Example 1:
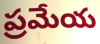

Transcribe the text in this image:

ప్రమేయ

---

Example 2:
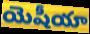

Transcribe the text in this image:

యెషీయా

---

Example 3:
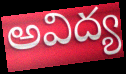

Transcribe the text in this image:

అవిద్య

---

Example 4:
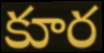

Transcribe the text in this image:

కూర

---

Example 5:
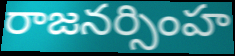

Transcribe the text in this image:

రాజనర్సింహ